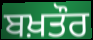
ਬਖ਼ਤੌਰ